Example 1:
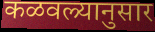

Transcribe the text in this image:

कळवल्यानुसार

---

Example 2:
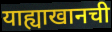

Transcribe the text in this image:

याह्याखानची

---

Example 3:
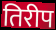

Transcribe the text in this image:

तिरीप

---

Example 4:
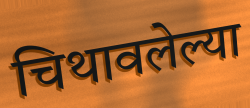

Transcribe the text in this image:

चिथावलेल्या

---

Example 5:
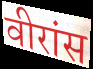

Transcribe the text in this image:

वीरांस